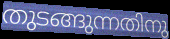
തുടങ്ങുന്നതിനു